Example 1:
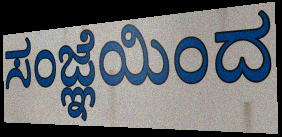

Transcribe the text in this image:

ಸಂಜ್ಞೆಯಿಂದ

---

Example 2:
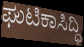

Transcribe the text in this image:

ಘುಟಿಕಾಸಿದ್ಧಿ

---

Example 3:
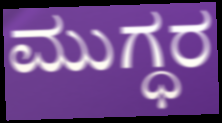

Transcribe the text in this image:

ಮುಗ್ಧರ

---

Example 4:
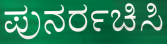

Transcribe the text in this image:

ಪುನರ್ರಚಿಸಿ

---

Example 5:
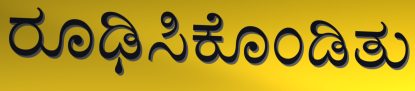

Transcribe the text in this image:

ರೂಢಿಸಿಕೊಂಡಿತು